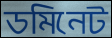
ডমিনেট